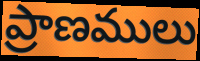
ప్రాణములు